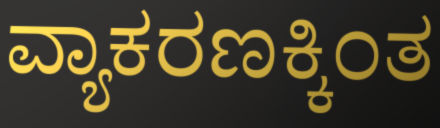
ವ್ಯಾಕರಣಕ್ಕಿಂತ